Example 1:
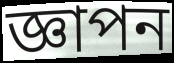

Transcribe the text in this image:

জ্ঞাপন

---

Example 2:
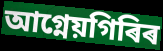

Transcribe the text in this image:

আগ্নেয়গিৰিৰ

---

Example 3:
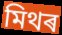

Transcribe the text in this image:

মিথৰ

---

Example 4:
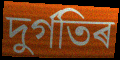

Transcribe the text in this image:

দুৰ্গতিৰ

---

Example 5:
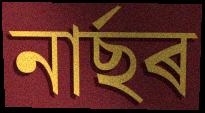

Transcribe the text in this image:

নাৰ্ছৰ